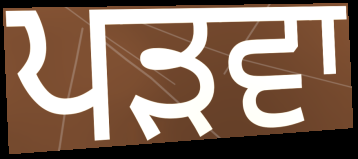
ਪੜਵਾ